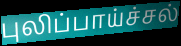
புலிப்பாய்ச்சல்